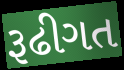
રૂઢીગત